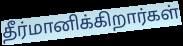
தீர்மானிக்கிறார்கள்